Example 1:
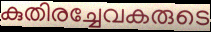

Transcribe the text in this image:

കുതിരച്ചേവകരുടെ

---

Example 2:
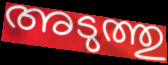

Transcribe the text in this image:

അടുത്തു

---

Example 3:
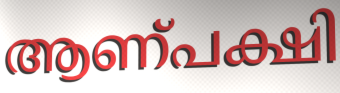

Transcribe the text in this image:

ആണ്പക്ഷി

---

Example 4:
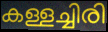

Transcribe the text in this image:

കള്ളച്ചിരി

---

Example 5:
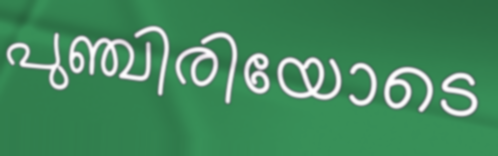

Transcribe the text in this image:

പുഞ്ചിരിയോടെ